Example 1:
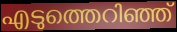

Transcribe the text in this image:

എടുത്തെറിഞ്ഞ്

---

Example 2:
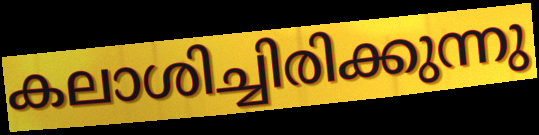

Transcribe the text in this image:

കലാശിച്ചിരിക്കുന്നു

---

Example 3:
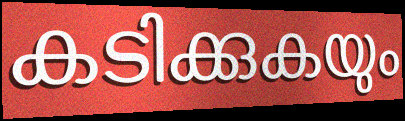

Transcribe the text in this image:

കടിക്കുകയും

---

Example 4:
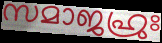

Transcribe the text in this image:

സമാജഹ്രുഃ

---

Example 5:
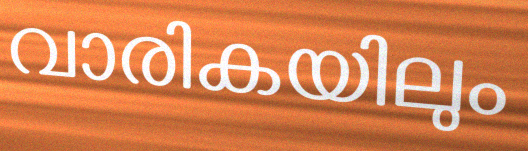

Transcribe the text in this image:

വാരികയിലും